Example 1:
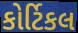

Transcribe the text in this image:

કોર્ટિકલ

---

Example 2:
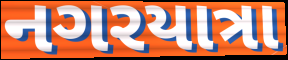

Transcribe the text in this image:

નગરયાત્રા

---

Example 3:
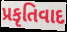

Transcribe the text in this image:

પ્રકૃતિવાદ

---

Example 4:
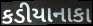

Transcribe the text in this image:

કડીયાનાકા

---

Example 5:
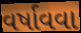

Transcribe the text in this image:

વર્ષાવવા